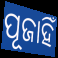
ପୂଜାହିଁ